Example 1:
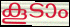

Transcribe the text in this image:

കൂടാം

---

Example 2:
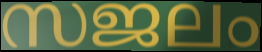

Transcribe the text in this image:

സജലം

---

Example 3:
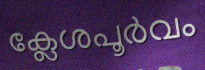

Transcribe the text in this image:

ക്ലേശപൂർവം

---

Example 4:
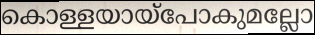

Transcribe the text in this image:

കൊള്ളയായ്പോകുമല്ലോ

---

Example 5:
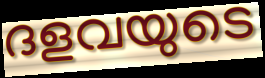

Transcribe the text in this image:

ദളവയുടെ